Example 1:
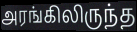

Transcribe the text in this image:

அரங்கிலிருந்த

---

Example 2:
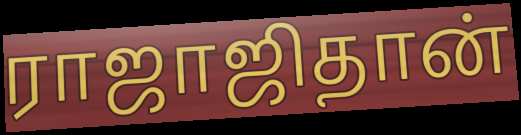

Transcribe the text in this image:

ராஜாஜிதான்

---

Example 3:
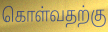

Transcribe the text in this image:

கொள்வதற்கு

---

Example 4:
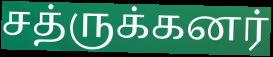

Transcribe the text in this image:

சத்ருக்கனர்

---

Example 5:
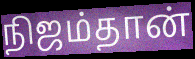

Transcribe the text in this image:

நிஜம்தான்